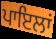
ਪਾਇਲਾਂ